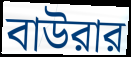
বাউরার